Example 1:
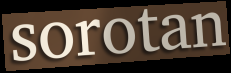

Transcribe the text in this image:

sorotan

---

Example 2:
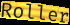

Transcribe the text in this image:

Roller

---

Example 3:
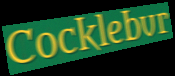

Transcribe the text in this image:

Cocklebur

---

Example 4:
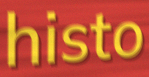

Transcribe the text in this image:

histo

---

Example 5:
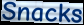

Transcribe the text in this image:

Snacks